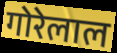
गोरेलाल